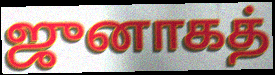
ஜுனாகத்